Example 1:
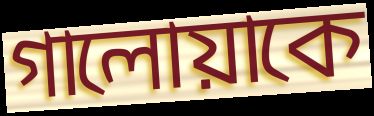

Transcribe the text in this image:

গালোয়াকে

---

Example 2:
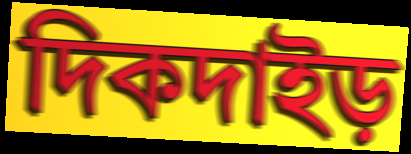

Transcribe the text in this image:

দিকদাইড়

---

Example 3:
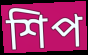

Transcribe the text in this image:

শিপ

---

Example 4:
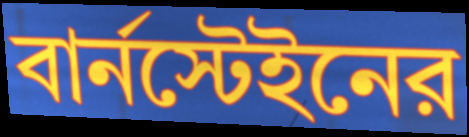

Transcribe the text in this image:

বার্নস্টেইনের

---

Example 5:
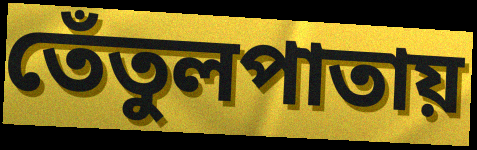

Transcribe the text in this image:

তেঁতুলপাতায়